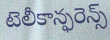
టెలీకాన్ఫరెన్స్